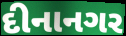
દીનાનગર